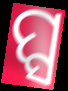
ପ୍ସ